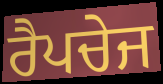
ਰੈਪਚੇਜ